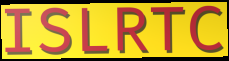
ISLRTC